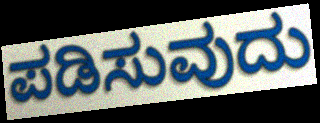
ಪಡಿಸುವುದು